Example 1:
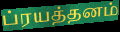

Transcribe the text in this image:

ப்ரயத்தனம்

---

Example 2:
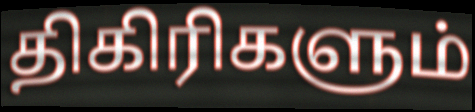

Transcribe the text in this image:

திகிரிகளும்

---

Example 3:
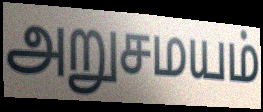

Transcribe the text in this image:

அறுசமயம்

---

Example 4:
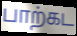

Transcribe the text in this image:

பாற்கட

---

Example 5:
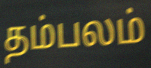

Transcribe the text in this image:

தம்பலம்